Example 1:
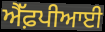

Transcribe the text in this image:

ਐੱਫ਼ਪੀਆਈ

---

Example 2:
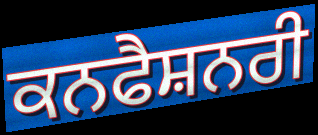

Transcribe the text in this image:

ਕਨਫੈਸ਼ਨਰੀ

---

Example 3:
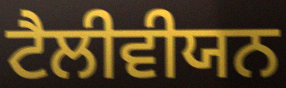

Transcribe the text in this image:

ਟੈਲੀਵੀਯਨ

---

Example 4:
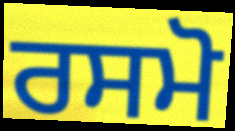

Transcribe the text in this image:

ਰਸਮੋ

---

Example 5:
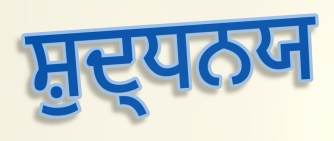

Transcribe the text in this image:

ਸ਼ੁਦ੍ਧਨਯ